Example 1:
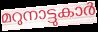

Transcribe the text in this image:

മറുനാട്ടുകാർ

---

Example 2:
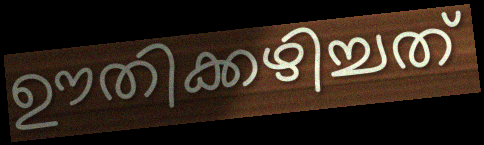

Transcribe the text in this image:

ഊതിക്കഴിച്ചത്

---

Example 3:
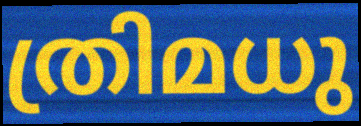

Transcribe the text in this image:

ത്രിമധു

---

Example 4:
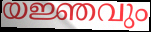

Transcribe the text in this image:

യജ്ഞവും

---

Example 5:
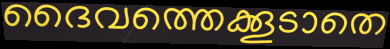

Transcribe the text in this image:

ദൈവത്തെക്കൂടാതെ